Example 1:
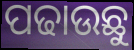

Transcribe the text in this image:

ପଢାଉଛୁ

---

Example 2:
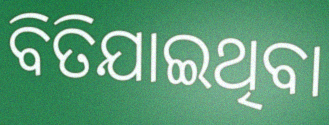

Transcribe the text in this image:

ବିତିଯାଇଥିବା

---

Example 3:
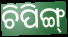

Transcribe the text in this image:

ଚିପିଙ୍ଗ୍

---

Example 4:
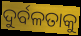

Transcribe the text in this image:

ଦୁର୍ବଳତାକୁ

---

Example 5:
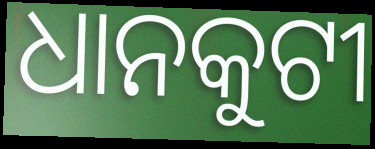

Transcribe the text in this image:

ଧାନକୁଟୀ